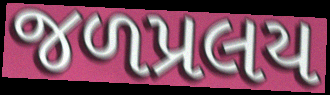
જળપ્રલય